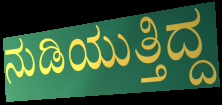
ನುಡಿಯುತ್ತಿದ್ದ